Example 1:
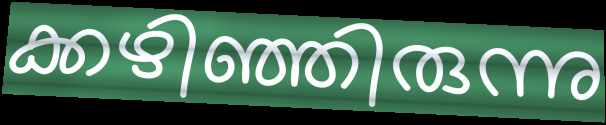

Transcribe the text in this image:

ക്കഴിഞ്ഞിരുന്നു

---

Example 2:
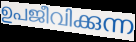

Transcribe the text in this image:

ഉപജീവിക്കുന്ന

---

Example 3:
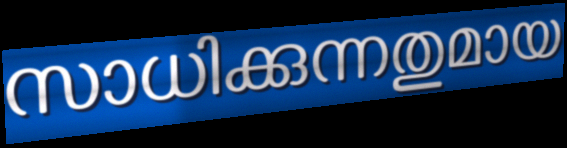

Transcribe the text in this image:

സാധിക്കുന്നതുമായ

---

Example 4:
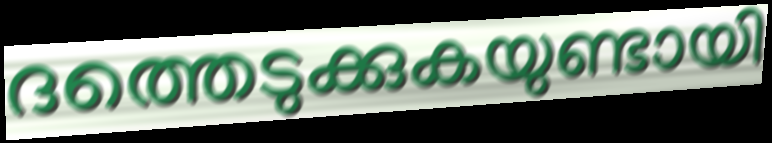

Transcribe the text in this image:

ദത്തെടുക്കുകയുണ്ടായി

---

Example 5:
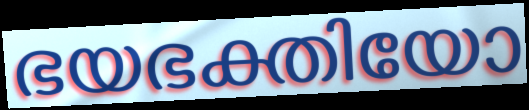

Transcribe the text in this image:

ഭയഭക്തിയോ